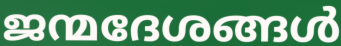
ജന്മദേശങ്ങൾ